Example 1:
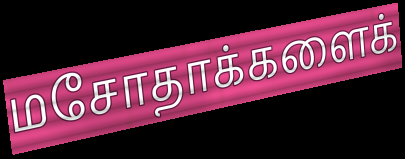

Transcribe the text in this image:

மசோதாக்களைக்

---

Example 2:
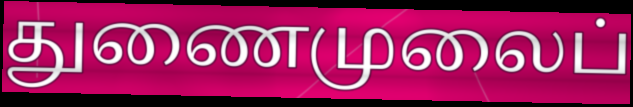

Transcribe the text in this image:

துணைமுலைப்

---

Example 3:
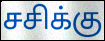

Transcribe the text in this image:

சசிக்கு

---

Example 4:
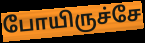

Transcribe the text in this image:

போயிருச்சே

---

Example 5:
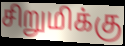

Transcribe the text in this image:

சிறுமிக்கு